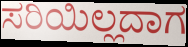
ಸರಿಯಿಲ್ಲದಾಗ